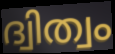
ദ്വിത്വം